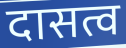
दासत्व